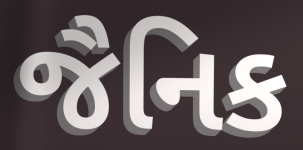
જૈનિક